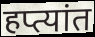
हप्त्यांत